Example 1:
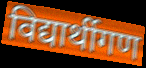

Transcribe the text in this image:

विद्यार्थीगण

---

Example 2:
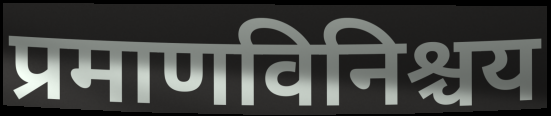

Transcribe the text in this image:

प्रमाणविनिश्चय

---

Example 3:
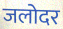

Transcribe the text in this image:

जलोदर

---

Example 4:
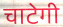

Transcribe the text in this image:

चाटेगी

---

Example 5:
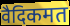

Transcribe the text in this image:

वैदिकमत